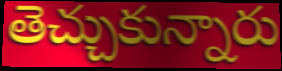
తెచ్చుకున్నారు